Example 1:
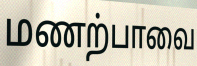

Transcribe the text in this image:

மணற்பாவை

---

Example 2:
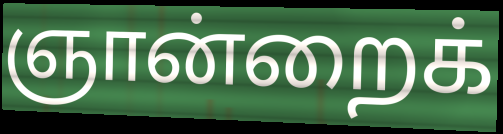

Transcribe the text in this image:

ஞான்றைக்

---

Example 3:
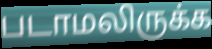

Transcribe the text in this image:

படாமலிருக்க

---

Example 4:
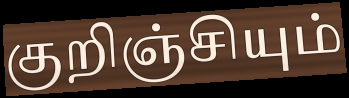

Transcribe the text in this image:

குறிஞ்சியும்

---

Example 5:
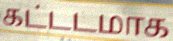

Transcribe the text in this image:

கட்டடமாக